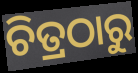
ଚିତ୍ରଠାରୁ